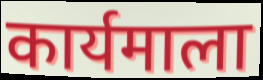
कार्यमाला